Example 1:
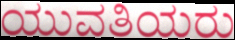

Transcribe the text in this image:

ಯುವತಿಯರು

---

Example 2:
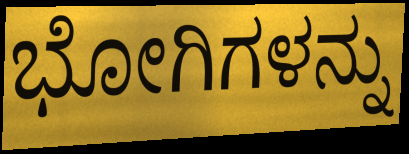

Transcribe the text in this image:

ಭೋಗಿಗಳನ್ನು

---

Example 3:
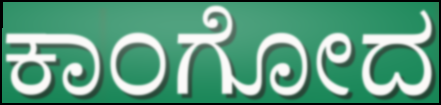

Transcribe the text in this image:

ಕಾಂಗೋದ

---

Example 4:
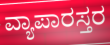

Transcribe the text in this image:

ವ್ಯಾಪಾರಸ್ತರ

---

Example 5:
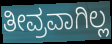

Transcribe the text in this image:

ತೀವ್ರವಾಗಿಲ್ಲ